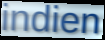
indien